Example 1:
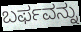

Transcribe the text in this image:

ಬರ್ಫವನ್ನು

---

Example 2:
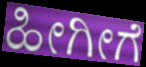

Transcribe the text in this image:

ಹೀಗೀಗೆ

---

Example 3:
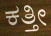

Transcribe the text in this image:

ಕತ್ತೀ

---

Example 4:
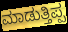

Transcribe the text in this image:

ಮಾಡುತ್ತಿಪ್ಪ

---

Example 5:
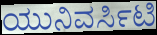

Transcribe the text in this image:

ಯುನಿವರ್ಸಿಟಿ